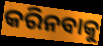
କରିନବାକୁ